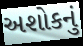
અશોકનું